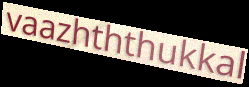
vaazhththukkal